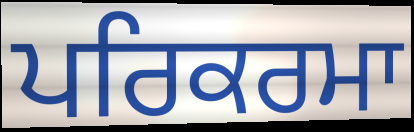
ਪਰਿਕਰਮਾ